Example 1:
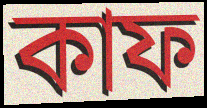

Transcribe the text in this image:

কাফ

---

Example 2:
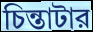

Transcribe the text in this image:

চিন্তাটার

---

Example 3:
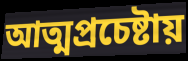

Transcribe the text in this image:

আত্মপ্রচেষ্টায়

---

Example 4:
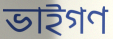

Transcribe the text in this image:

ভাইগণ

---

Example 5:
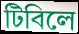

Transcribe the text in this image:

টিবিলে